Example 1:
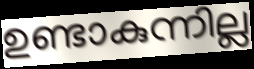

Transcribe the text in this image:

ഉണ്ടാകുന്നില്ല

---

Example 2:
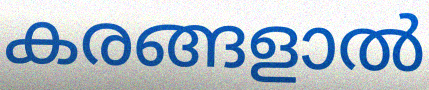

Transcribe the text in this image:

കരങ്ങളാൽ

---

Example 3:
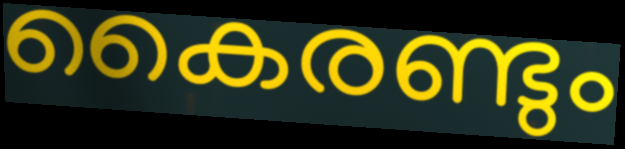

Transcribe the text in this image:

കൈരണ്ടും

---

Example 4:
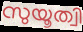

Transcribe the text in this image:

സുയൂത്വി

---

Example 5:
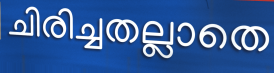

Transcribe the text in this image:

ചിരിച്ചതല്ലാതെ